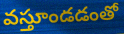
వస్తూండడంతో